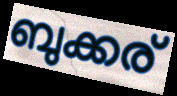
ബുക്കര്